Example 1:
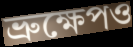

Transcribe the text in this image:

ভ্রুক্ষেপও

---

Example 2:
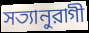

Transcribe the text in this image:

সত্যানুরাগী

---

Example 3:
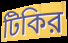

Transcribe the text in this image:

টিকির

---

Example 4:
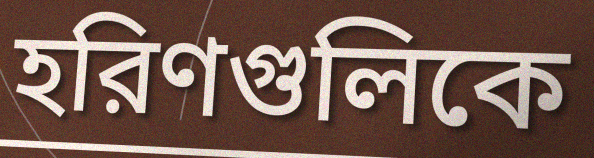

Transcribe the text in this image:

হরিণগুলিকে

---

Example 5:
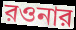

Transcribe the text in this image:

রওনার